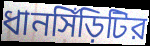
ধানসিঁড়িটির